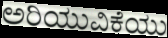
ಅರಿಯುವಿಕೆಯು